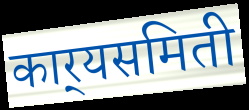
कार्यसमिती